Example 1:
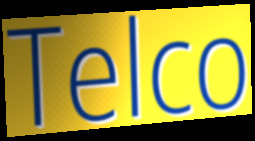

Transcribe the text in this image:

Telco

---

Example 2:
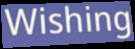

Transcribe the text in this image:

Wishing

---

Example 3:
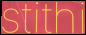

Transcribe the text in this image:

stithi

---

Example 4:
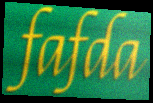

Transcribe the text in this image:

fafda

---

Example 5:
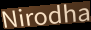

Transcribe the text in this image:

Nirodha